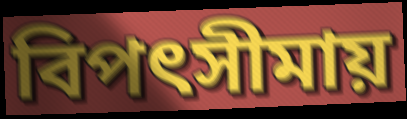
বিপৎসীমায়